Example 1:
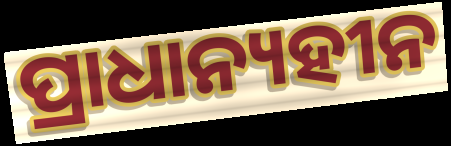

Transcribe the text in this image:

ପ୍ରାଧାନ୍ୟହୀନ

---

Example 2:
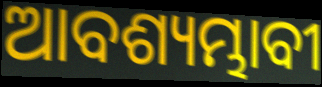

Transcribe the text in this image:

ଆବଶ୍ୟମ୍ଭାବୀ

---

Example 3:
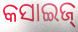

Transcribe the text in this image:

କସାଇଜ୍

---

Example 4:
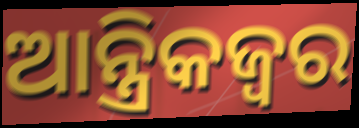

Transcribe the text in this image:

ଆନ୍ତ୍ରିକଜ୍ଵର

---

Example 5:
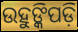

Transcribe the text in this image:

ଉହୁଙ୍କିପଡ଼ି